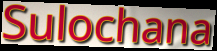
Sulochana